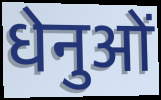
धेनुओं